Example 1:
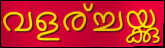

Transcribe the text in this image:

വളര്ച്ചയ്ക്കു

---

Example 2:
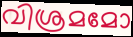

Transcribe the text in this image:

വിശ്രമമോ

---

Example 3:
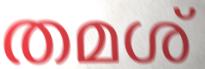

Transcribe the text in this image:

തമശ്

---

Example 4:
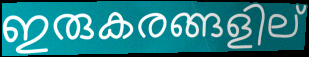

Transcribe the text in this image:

ഇരുകരങ്ങളില്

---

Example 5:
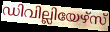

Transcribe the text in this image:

ഡിവില്ലിയേഴ്സ്